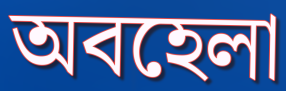
অবহেলা